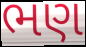
ભણ